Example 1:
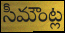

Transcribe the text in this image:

సీమౌంట్ల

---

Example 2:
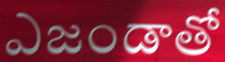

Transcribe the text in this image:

ఎజండాతో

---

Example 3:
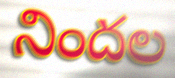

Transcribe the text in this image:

నిందల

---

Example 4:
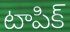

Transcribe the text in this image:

టాపిక్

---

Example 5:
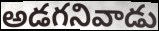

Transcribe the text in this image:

అడగనివాడు